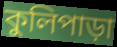
কুলিপাড়া